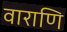
वाराणि